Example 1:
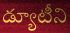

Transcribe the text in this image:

డ్యూటీని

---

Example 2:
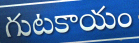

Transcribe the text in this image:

గుటకాయం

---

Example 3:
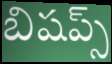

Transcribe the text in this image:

బిషప్స్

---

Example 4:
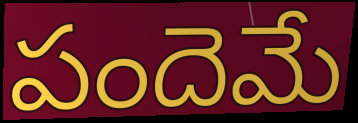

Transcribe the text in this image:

పందెమే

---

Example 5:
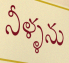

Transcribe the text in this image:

నీళ్ళను